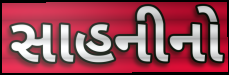
સાહનીનો